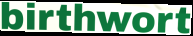
birthwort